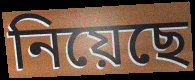
নিয়েছে